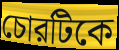
চোরটিকে